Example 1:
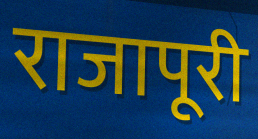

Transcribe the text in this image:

राजापूरी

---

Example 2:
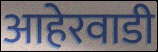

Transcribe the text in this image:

आहेरवाडी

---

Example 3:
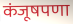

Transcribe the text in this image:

कंजूषपणा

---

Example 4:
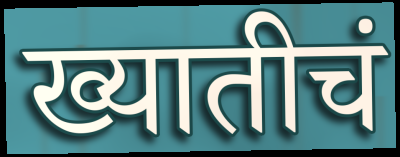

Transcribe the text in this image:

ख्यातीचं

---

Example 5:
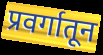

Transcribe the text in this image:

प्रवर्गातून